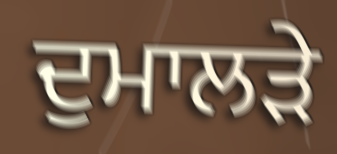
ਦੁਮਾਲੜੇ